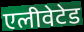
एलीवेटेड